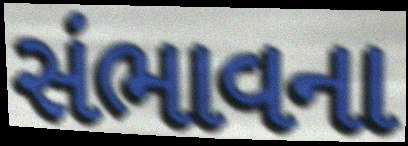
સંભાવના